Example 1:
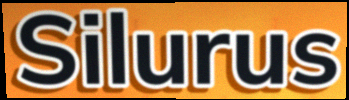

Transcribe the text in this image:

Silurus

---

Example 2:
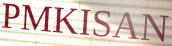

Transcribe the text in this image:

PMKISAN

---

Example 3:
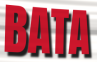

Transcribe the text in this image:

BATA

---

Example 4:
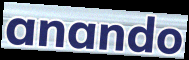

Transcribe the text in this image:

anando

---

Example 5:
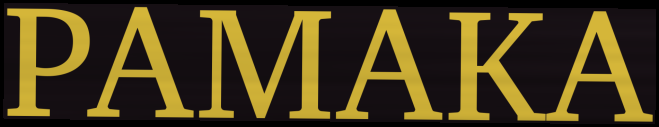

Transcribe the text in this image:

PAMAKA